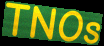
TNOs